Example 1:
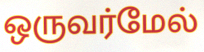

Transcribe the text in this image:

ஒருவர்மேல்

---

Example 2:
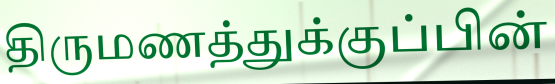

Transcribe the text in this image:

திருமணத்துக்குப்பின்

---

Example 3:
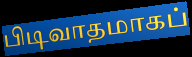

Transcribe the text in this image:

பிடிவாதமாகப்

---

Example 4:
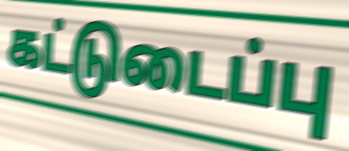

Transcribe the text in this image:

கட்டுடைப்பு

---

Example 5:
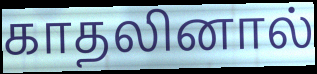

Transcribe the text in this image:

காதலினால்